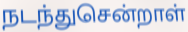
நடந்துசென்றாள்